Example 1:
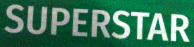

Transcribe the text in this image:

SUPERSTAR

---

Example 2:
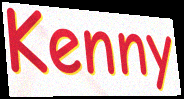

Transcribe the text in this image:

Kenny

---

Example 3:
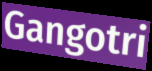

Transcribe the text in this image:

Gangotri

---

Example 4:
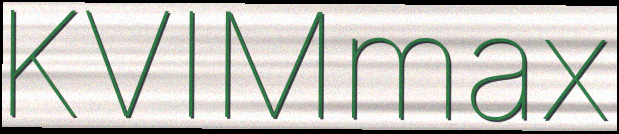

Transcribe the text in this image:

KVIMmax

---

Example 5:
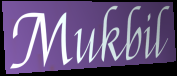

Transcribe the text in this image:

Mukbil